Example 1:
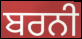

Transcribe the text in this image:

ਬਰਨੀ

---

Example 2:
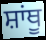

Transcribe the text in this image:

ਸ਼ਾਂਥੂ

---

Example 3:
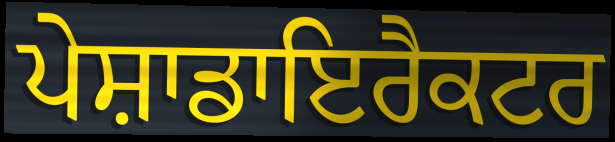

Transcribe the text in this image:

ਪੇਸ਼ਾਡਾਇਰੈਕਟਰ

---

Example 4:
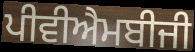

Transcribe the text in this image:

ਪੀਵੀਐਮਬੀਜੀ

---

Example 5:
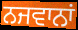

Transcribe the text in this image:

ਨਜਵਾਨਾਂ